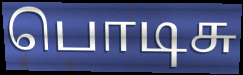
பொடிசு